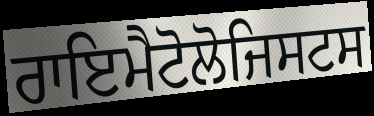
ਰਾਇਮੈਟੋਲੋਜਿਸਟਸ